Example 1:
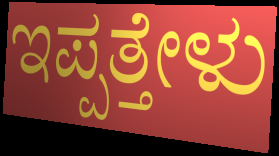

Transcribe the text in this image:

ಇಪ್ಪತ್ತೇಳು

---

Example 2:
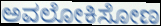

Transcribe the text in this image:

ಅವಲೋಕಿಸೋಣ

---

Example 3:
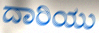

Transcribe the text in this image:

ದಾರಿಯು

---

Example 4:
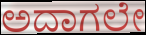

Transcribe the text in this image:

ಅದಾಗಲೇ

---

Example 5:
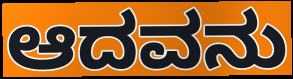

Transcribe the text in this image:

ಆದವನು